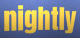
nightly